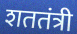
शततंत्री